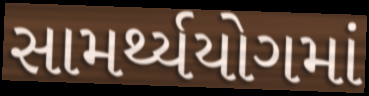
સામર્થ્યયોગમાં